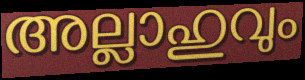
അല്ലാഹുവും